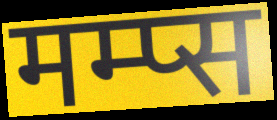
मम्प्स